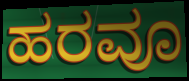
ಹರವೂ